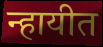
न्हायीत